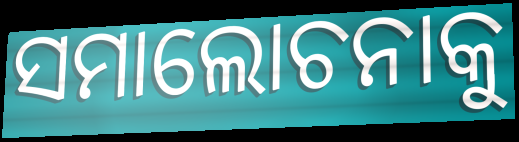
ସମାଲୋଚନାକୁ